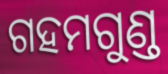
ଗହମଗୁଣ୍ଡ